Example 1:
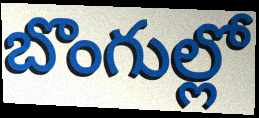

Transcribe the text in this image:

బొంగుల్లో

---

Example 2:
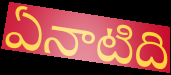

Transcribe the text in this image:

ఏనాటిది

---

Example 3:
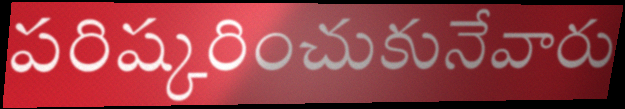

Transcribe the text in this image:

పరిష్కరించుకునేవారు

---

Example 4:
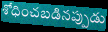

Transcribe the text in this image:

శోధించబడినప్పుడు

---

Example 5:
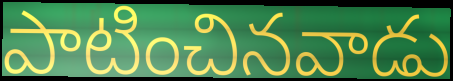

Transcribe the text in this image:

పాటించినవాడు